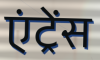
एंट्रेंस